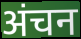
अंचन